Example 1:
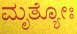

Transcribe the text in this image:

ಮೃತ್ಯೋಃ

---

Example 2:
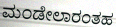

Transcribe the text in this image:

ಮಂಡೇಲಾರಂತಹ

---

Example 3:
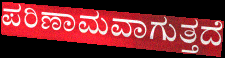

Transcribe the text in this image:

ಪರಿಣಾಮವಾಗುತ್ತದೆ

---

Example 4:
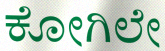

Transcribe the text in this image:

ಕೋಗಿಲೇ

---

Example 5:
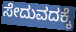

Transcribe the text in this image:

ಸೇದುವದಕ್ಕೆ